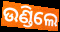
ଉଣ୍ଡିଲେ